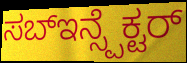
ಸಬ್ಇನ್ಸ್ಪೆಕ್ಟರ್